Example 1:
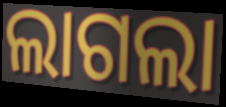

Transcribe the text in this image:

ଲାଗଲା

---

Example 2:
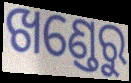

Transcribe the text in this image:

ଖଣ୍ଡେରୁ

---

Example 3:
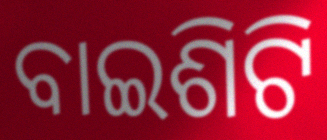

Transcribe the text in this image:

ବାଇଶିଟି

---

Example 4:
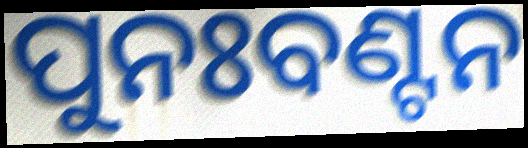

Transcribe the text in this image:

ପୁନଃବଣ୍ଟନ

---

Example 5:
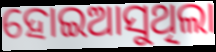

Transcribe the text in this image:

ହୋଇଆସୁଥିଲା